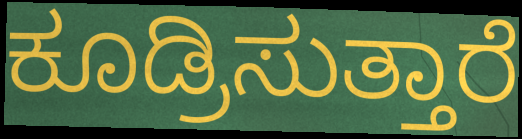
ಕೂಡ್ರಿಸುತ್ತಾರೆ